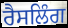
ਰੈਸਲਿੰਗ